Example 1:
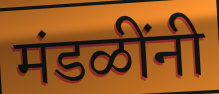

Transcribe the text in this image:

मंडळींनी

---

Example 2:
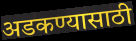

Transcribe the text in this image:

अडकण्यासाठी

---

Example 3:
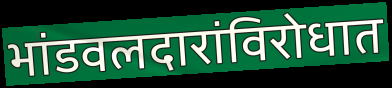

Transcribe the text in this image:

भांडवलदारांविरोधात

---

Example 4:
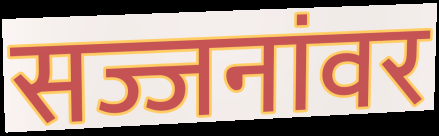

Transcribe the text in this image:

सज्जनांवर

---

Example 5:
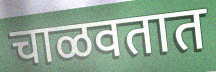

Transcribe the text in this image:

चाळवतात